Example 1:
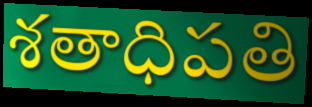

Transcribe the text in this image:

శతాధిపతి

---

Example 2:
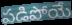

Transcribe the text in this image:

పడిపోయే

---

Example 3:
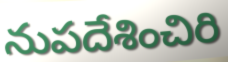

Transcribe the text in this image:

నుపదేశించిరి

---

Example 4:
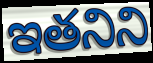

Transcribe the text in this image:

ఇతనిని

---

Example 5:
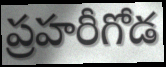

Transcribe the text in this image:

ప్రహరీగోడ